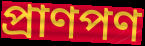
প্রাণপণ